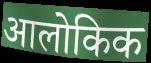
आलोकिक